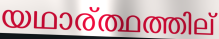
യഥാര്ത്ഥത്തില്